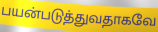
பயன்படுத்துவதாகவே